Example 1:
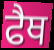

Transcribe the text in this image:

ਫੈਥ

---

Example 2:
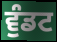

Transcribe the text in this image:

ਵੁੰਡਟ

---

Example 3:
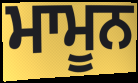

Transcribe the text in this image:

ਮਾਮੂਨ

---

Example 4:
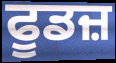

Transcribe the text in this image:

ਫੂਡਜ਼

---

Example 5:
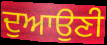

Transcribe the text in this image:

ਦੁਆਉਣੀ